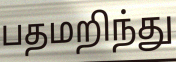
பதமறிந்து